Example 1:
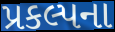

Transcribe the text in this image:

પ્રકલ્પના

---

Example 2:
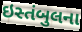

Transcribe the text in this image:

ઇસ્તંબુલના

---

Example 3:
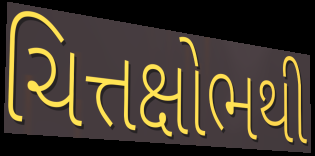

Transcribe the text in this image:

ચિત્તક્ષોભથી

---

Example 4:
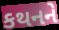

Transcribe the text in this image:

કથનને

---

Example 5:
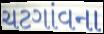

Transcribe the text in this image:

ચટગાંવના